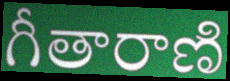
గీతారాణి